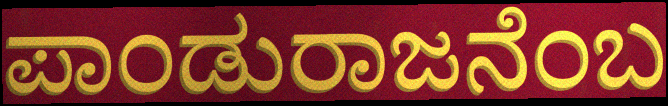
ಪಾಂಡುರಾಜನೆಂಬ